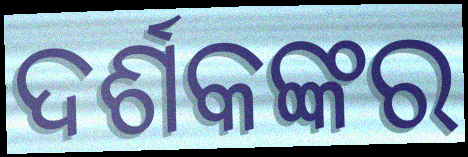
ଦର୍ଶକଙ୍କର